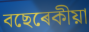
বছেৰেকীয়া